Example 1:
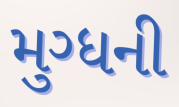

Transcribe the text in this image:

મુગ્ધની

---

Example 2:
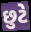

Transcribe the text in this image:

છુટે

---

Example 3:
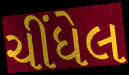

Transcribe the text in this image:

ચીંધેલ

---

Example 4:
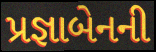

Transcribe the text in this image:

પ્રજ્ઞાબેનની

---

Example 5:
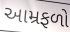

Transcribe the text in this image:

આમ્રફળો